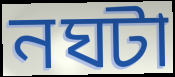
নঘটা